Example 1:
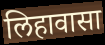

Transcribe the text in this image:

लिहावासा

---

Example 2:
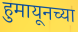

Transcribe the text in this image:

हुमायूनच्या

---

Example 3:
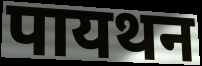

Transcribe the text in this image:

पायथन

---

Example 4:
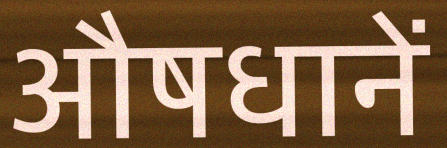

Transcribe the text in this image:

औषधानें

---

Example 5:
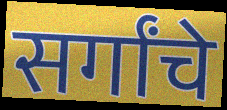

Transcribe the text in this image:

सर्गांचे